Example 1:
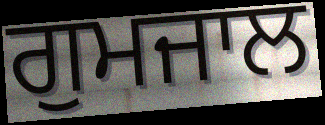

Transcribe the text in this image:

ਗੁਮਜਾਲ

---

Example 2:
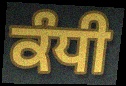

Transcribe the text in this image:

ਕੰਧੀ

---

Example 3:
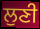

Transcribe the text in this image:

ਲੁਣੀ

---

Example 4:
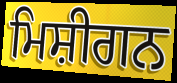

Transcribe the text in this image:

ਮਿਸ਼ੀਗਨ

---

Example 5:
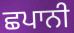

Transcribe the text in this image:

ਛਪਾਨੀ